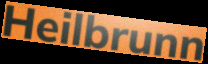
Heilbrunn